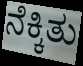
ನೆಕ್ಕಿತು